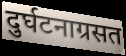
दुर्घटनाग्रसत